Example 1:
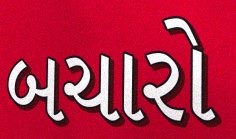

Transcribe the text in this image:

બચારો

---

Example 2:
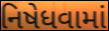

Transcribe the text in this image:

નિષેધવામાં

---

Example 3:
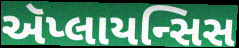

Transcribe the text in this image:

ઍપ્લાયન્સિસ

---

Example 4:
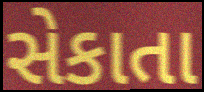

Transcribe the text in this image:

સેકાતા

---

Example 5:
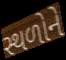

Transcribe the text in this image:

સ્થળોને